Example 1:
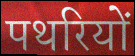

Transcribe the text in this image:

पथरियों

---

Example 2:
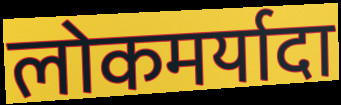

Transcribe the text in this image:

लोकमर्यादा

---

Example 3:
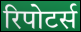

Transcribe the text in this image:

रिपोटर्स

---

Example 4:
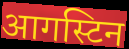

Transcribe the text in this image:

आगस्टिन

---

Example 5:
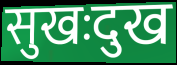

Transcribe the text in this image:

सुखःदुख